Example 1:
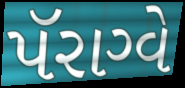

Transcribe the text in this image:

પૅરાગ્વે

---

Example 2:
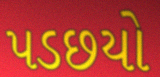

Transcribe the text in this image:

પડછયો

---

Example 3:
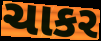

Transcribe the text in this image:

ચાકર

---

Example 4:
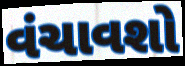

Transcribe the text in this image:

વંચાવશો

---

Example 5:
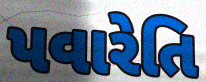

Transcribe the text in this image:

પવારેતિ